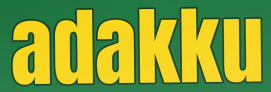
adakku